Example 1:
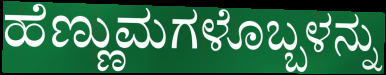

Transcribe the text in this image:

ಹೆಣ್ಣುಮಗಳೊಬ್ಬಳನ್ನು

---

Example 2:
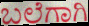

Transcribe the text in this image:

ಬಲೆಗಾಗಿ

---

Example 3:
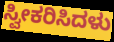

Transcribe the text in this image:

ಸ್ವೀಕರಿಸಿದಳು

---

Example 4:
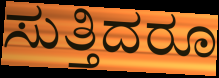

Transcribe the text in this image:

ಸುತ್ತಿದರೂ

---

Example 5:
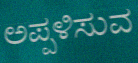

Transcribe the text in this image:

ಅಪ್ಪಳಿಸುವ